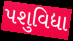
પશુવિદ્યા